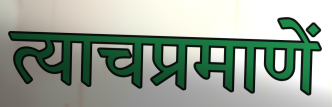
त्याचप्रमाणें